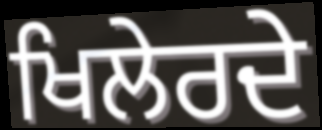
ਖਿਲੇਰਦੇ